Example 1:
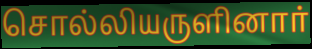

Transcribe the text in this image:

சொல்லியருளினார்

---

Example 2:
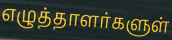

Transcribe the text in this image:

எழுத்தாளர்களுள்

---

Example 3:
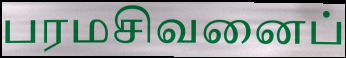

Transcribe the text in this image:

பரமசிவனைப்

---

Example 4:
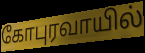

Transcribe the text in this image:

கோபுரவாயில்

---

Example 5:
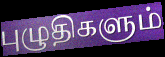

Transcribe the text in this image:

புழுதிகளும்